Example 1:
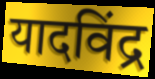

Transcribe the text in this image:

यादविंद्र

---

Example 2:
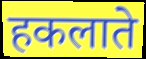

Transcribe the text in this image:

हकलाते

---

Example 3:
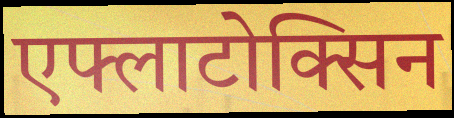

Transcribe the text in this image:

एफ्लाटोक्सिन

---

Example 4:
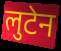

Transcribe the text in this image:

लुटेन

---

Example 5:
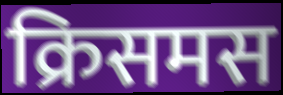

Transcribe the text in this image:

क्रिसमस